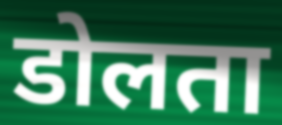
डोलता